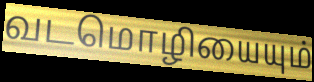
வடமொழியையும்